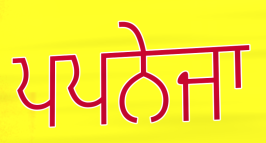
ਪਪਨੇਜਾ